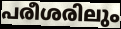
പരീശരിലും